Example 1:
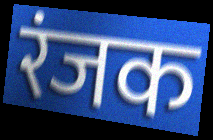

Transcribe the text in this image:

रंजक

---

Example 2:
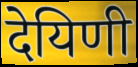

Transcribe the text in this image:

देयिणी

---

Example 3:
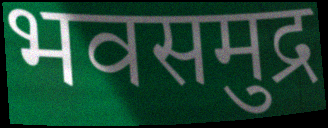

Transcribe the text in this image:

भवसमुद्र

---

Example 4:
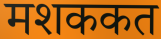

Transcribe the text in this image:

मशककत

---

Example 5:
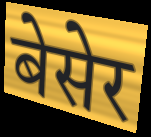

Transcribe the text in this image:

बेसेर